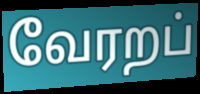
வேரறப்